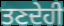
ਤਣਦੇਹੀ